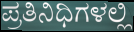
ಪ್ರತಿನಿಧಿಗಳಲ್ಲಿ